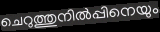
ചെറുത്തുനിൽപ്പിനെയും